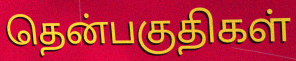
தென்பகுதிகள்